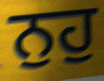
ਨੁਹੁ